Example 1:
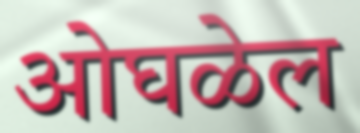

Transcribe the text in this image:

ओघळेल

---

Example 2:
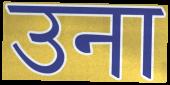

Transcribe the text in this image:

उना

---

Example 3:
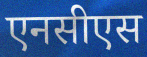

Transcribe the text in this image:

एनसीएस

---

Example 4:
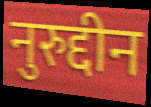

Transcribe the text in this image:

नुरुद्दीन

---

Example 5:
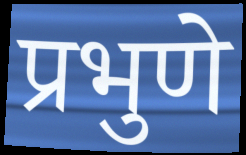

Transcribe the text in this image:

प्रभुणे